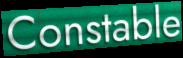
Constable